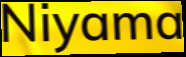
Niyama